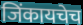
जिंकायचेच